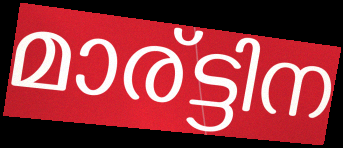
മാര്ട്ടിന